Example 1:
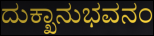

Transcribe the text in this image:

ದುಕ್ಖಾನುಭವನಂ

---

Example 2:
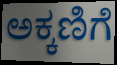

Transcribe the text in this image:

ಅಕ್ಕಣಿಗೆ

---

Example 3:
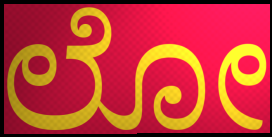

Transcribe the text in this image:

ಲೋ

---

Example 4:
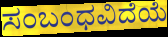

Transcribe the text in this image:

ಸಂಬಂಧವಿದೆಯೆ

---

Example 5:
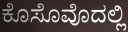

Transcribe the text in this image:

ಕೊಸೊವೊದಲ್ಲಿ